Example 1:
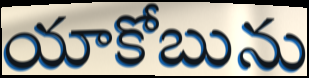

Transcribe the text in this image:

యాకోబును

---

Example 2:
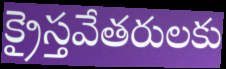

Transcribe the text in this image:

క్రైస్తవేతరులకు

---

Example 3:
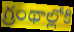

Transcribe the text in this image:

గ్రంథాల్లోకి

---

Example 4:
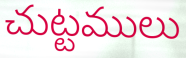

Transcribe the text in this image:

చుట్టములు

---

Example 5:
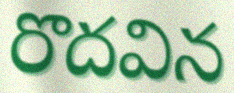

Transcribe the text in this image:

రొదవిన